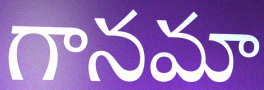
గానమా